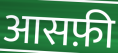
आसफ़ी